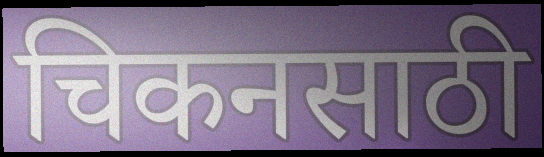
चिकनसाठी